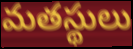
మతస్థులు